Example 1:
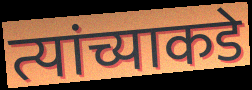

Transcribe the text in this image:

त्यांच्याकडे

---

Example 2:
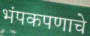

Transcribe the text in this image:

भंपकपणाचे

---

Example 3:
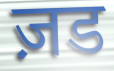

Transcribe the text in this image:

ज़ड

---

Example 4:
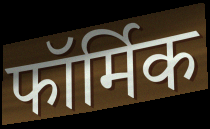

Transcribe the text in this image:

फॉर्मिक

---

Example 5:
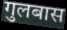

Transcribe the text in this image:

गुलबास